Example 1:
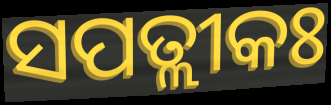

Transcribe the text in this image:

ସପତ୍ଲୀକଃ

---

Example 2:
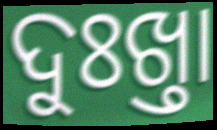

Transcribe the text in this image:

ଦୁଃଖ୍ତା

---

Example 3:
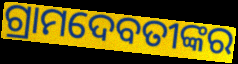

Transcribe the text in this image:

ଗ୍ରାମଦେବତୀଙ୍କର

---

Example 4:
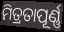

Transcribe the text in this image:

ମିତ୍ରତାପୂର୍ଣ୍ଣ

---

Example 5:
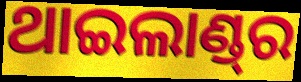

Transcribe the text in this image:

ଥାଇଲାଣ୍ଡ୍‌ର